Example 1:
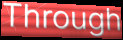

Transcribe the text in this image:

Through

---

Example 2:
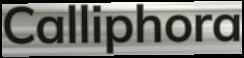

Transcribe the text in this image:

Calliphora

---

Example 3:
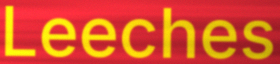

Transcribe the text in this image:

Leeches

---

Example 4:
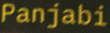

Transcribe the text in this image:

Panjabi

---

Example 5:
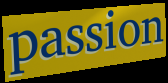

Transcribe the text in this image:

passion